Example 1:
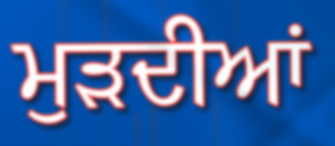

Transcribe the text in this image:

ਮੁੜਦੀਆਂ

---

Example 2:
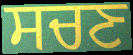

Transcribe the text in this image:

ਸਚਣ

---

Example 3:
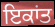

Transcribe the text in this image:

ਇਕਾਂਤ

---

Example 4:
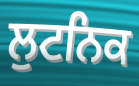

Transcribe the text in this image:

ਲੁਟਨਿਕ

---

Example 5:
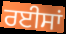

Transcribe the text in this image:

ਰਈਸਾਂ